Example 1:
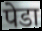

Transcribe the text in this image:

पेडा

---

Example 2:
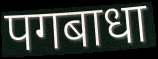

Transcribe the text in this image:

पगबाधा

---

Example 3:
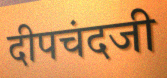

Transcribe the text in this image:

दीपचंदजी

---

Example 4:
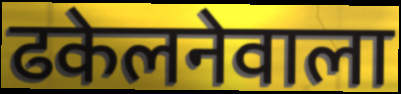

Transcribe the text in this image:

ढकेलनेवाला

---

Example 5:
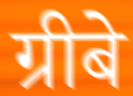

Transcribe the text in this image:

ग्रीबे